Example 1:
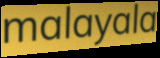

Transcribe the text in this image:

malayala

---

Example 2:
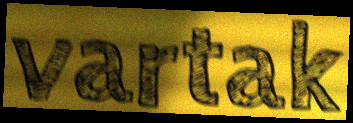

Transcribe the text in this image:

vartak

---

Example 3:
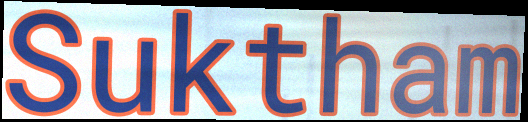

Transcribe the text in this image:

Suktham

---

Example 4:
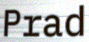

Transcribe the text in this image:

Prad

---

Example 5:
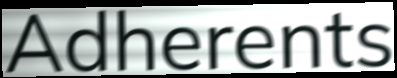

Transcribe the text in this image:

Adherents